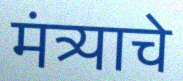
मंत्र्याचे